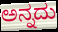
ಅನ್ನದು